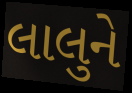
લાલુને